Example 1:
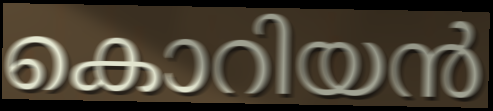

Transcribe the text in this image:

കൊറിയൻ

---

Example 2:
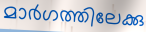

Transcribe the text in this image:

മാർഗത്തിലേക്കു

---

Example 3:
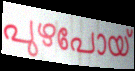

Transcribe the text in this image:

പുഴപോയ്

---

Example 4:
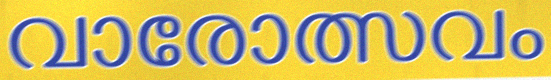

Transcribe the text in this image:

വാരോത്സവം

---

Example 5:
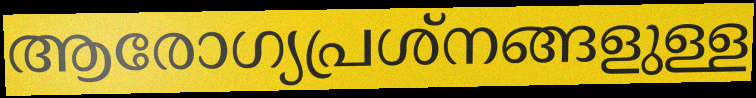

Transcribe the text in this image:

ആരോഗ്യപ്രശ്നങ്ങളുള്ള